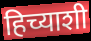
हिच्याशी